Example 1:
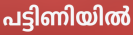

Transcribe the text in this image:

പട്ടിണിയിൽ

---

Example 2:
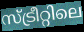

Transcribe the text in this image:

സ്ട്രീറ്റിലെ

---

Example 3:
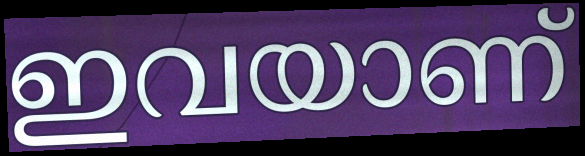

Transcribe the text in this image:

ഇവയാണ്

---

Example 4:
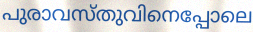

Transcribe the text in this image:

പുരാവസ്തുവിനെപ്പോലെ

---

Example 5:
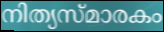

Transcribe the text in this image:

നിത്യസ്മാരകം